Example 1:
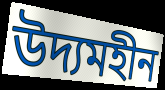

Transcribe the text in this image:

উদ্যমহীন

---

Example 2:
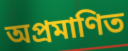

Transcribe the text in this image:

অপ্রমাণিত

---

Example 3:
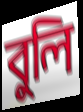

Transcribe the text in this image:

বুলি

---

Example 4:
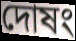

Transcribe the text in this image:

দোষং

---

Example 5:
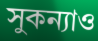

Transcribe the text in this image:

সুকন্যাও